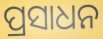
ପ୍ରସାଧନ